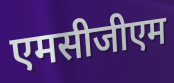
एमसीजीएम